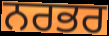
ਨਰਭਰ